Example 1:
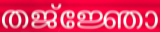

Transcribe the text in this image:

തജ്ജ്ഞോ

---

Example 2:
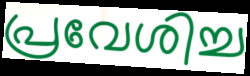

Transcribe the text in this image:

പ്രവേശിച്ച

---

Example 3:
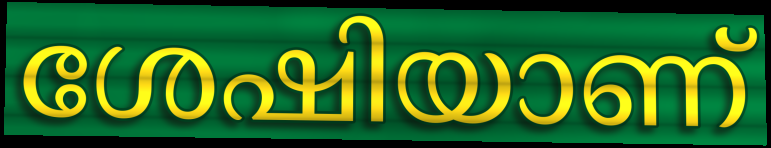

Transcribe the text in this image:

ശേഷിയാണ്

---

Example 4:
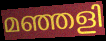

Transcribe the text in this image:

മഞ്ഞളി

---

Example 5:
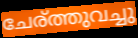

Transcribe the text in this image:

ചേര്ത്തുവച്ചു